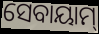
ସେବାୟାମ୍